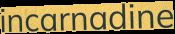
incarnadine